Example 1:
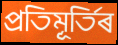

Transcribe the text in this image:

প্ৰতিমূৰ্তিৰ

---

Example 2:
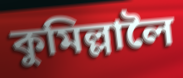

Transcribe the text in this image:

কুমিল্লালৈ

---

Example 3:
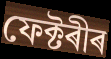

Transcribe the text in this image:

ফেক্টৰীৰ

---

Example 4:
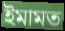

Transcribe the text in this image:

ইমামত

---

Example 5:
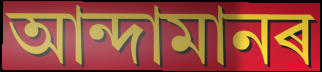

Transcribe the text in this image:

আন্দামানৰ